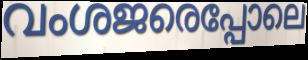
വംശജരെപ്പോലെ